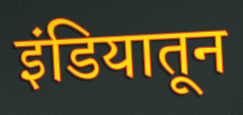
इंडियातून